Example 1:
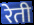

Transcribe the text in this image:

रेती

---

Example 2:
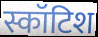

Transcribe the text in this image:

स्कॉटिश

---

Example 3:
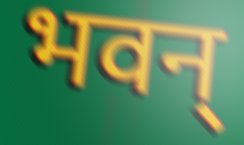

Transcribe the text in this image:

भवन्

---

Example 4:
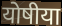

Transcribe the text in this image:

योषीया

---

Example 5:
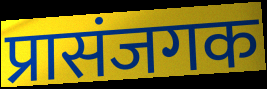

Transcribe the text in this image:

प्रासंजगक